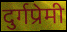
दुर्गप्रेमी